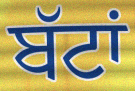
ਬੱਟਾਂ